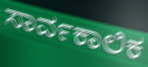
ಸಾರ್ವಕಾಲಿಕ